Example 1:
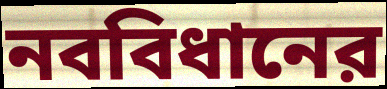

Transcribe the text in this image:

নববিধানের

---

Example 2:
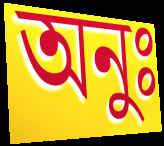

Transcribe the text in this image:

অনুঃ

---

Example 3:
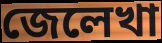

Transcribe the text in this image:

জেলেখা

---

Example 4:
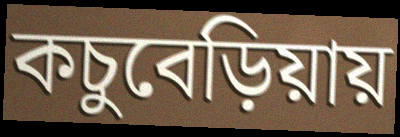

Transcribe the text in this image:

কচুবেড়িয়ায়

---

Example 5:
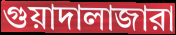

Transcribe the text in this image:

গুয়াদালাজারা